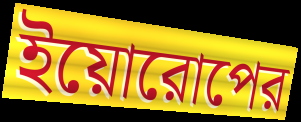
ইয়োরোপের